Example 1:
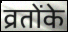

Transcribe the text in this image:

व्रतोंके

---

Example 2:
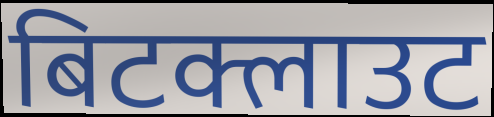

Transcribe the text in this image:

बिटक्लाउट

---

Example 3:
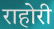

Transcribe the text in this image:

राहोरी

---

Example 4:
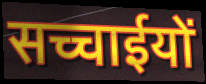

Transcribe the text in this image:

सच्चाईयों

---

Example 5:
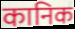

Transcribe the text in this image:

कानिक